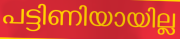
പട്ടിണിയായില്ല